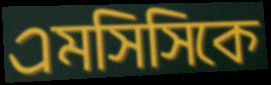
এমসিসিকে